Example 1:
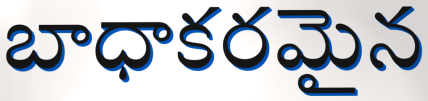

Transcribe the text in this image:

బాధాకరమైన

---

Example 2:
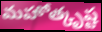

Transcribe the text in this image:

మహోత్కృష్ట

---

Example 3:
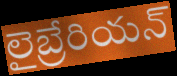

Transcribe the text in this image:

లైబ్రేరియన్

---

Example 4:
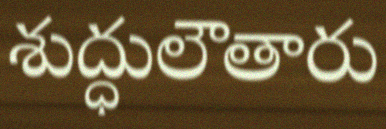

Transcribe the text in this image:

శుద్ధులౌతారు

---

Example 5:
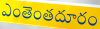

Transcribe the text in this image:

ఎంతెంతదూరం